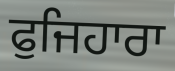
ਫੁਜਿਹਾਰਾ